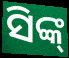
ସିଙ୍କ୍